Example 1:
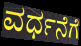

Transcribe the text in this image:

ವರ್ಧನೆಗೆ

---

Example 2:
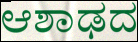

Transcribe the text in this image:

ಆಶಾಢದ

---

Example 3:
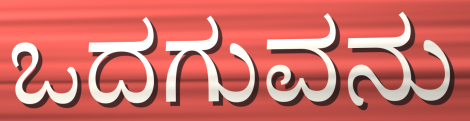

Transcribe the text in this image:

ಒದಗುವನು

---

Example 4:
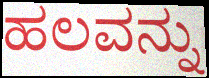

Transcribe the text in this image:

ಹಲವನ್ನು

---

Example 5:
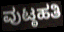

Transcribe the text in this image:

ವುಟ್ಠಹತಿ